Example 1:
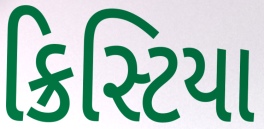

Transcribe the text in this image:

ક્રિસ્ટિયા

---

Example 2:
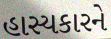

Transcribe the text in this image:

હાસ્યકારને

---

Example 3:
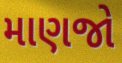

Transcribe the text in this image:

માણજો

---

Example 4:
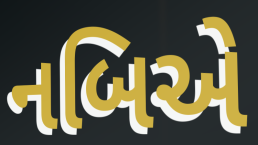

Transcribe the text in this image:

નબિએ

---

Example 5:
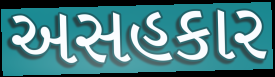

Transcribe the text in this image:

અસહકાર